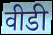
वीडी